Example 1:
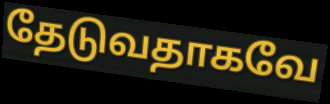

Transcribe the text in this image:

தேடுவதாகவே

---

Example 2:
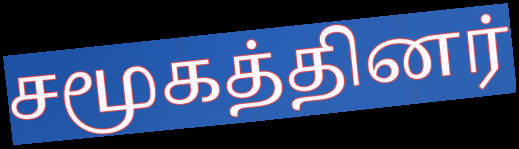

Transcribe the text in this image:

சமூகத்தினர்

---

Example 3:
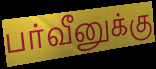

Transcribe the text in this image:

பர்வீனுக்கு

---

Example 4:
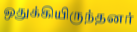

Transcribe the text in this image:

ஒதுக்கியிருந்தனர்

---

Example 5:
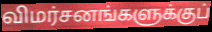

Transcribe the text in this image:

விமர்சனங்களுக்குப்